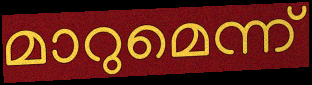
മാറുമെന്ന്